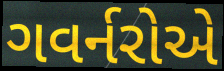
ગવર્નરોએ